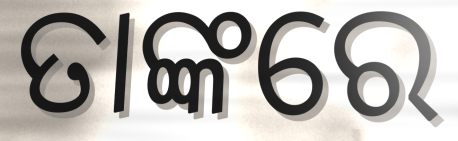
ତାଙ୍କରେ